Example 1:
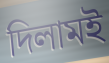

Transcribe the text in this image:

দিলামই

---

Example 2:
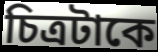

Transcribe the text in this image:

চিত্রটাকে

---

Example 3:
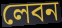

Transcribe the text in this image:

লেবন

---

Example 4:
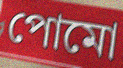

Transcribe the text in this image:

পোমো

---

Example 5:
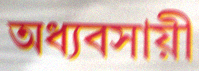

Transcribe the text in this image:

অধ্যবসায়ী